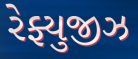
રેફ્યુજીઝ